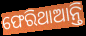
ଫେରିଥାଆନ୍ତି